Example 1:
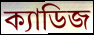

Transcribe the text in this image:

ক্যাডিজ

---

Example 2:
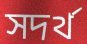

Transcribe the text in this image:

সদর্থ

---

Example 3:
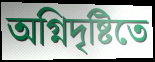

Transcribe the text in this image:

অগ্নিদৃষ্টিতে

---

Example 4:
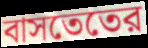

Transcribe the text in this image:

বাসতেতের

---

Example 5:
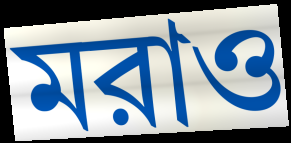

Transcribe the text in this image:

মরাও